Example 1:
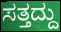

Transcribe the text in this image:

ಸತ್ತದ್ದು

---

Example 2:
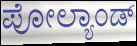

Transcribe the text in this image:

ಪೋಲ್ಯಾಂಡ್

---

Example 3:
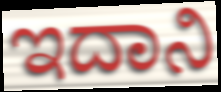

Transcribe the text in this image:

ಇದಾನಿ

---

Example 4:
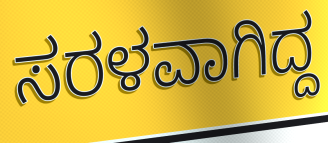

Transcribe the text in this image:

ಸರಳವಾಗಿದ್ದ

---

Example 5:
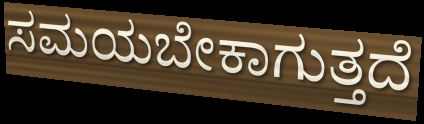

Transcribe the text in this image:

ಸಮಯಬೇಕಾಗುತ್ತದೆ